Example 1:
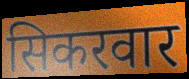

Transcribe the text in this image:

सिकरवार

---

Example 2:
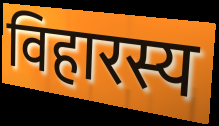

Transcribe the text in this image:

विहारस्य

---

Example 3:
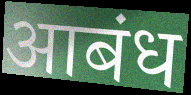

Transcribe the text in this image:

आबंध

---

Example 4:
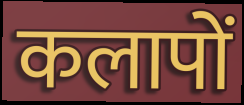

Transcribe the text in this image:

कलापों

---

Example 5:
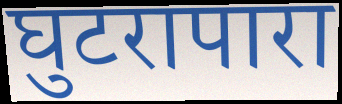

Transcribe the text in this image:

घुटरापारा